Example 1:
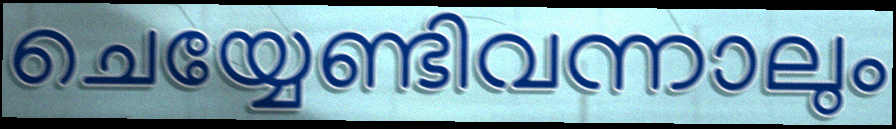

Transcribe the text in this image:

ചെയ്യേണ്ടിവന്നാലും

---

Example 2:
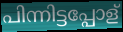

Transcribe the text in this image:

പിന്നിട്ടപ്പോള്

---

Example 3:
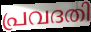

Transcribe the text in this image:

പ്രവദതി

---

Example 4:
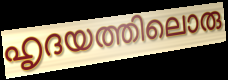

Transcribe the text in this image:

ഹൃദയത്തിലൊരു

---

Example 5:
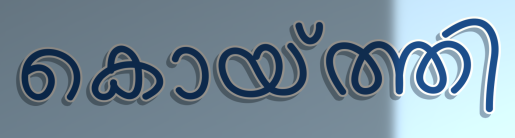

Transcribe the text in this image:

കൊയ്‌ത്തി